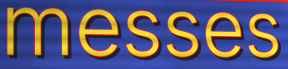
messes